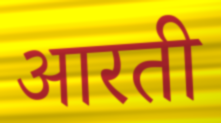
आरती